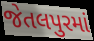
જેતલપુરમાં